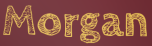
Morgan